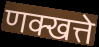
णक्खत्ते